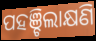
ପହଞ୍ଚିଲାକ୍ଷଣି